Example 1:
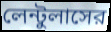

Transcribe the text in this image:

লেন্টুলাসের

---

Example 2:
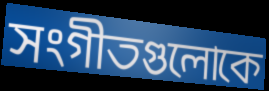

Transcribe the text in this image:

সংগীতগুলোকে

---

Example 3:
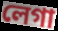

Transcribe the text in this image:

লেগা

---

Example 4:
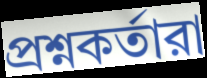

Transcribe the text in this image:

প্রশ্নকর্তারা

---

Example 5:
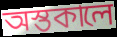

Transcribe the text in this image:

অস্তকালে